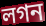
লগন